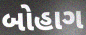
બોહાગ